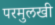
परमुलखी